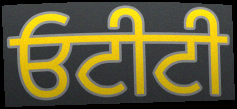
ਓਟੀਟੀ